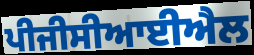
ਪੀਜੀਸੀਆਈਐਲ